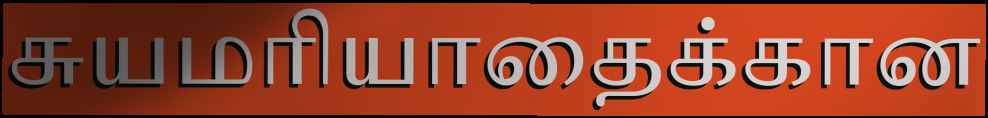
சுயமரியாதைக்கான